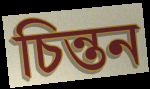
চিন্তন